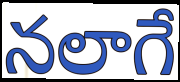
నలాగే